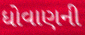
ધોવાણની